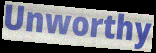
Unworthy